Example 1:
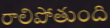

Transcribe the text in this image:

రాలిపోతుంది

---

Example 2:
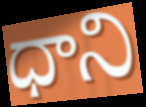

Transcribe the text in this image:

ధాని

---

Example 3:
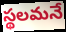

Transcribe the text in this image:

స్థలమనే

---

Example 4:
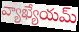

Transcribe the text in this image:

వ్యాఖ్యేయమ్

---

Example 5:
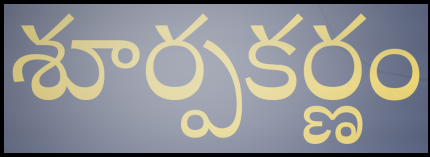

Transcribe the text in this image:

శూర్పకర్ణం